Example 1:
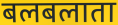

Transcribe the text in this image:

बलबलाता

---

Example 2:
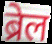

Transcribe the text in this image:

ब्रेल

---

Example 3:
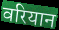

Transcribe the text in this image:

वरियान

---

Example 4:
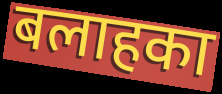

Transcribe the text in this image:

बलाहका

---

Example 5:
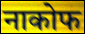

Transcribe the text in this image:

नाकोफ